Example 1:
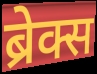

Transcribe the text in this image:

ब्रेक्स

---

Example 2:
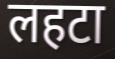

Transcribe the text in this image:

लहटा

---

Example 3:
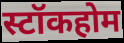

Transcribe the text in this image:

स्टॉकहोम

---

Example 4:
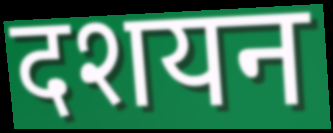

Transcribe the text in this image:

दशयन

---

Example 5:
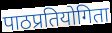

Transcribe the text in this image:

पाठप्रतियोगिता